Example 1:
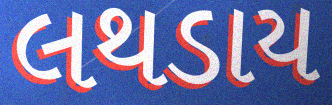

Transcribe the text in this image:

લથડાય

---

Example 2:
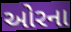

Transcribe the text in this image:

ઓરના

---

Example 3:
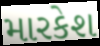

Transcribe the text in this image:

મારકેશ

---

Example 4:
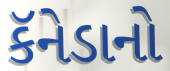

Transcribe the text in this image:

કૅનેડાનો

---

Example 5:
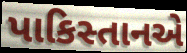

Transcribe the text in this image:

પાકિસ્તાનએ